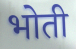
भोती